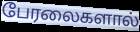
பேரலைகளால்